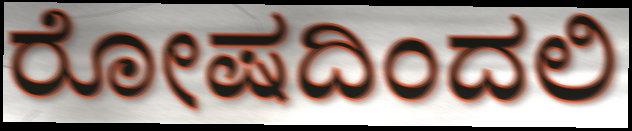
ರೋಷದಿಂದಲಿ